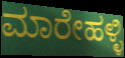
ಮಾರೇಹಳ್ಳಿ